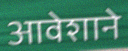
आवेशाने